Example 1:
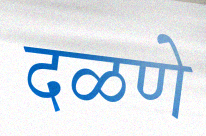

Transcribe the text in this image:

दळणे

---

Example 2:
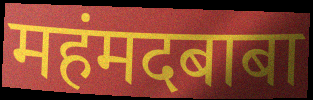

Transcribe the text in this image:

महंमदबाबा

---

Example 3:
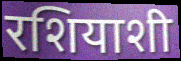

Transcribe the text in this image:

रशियाशी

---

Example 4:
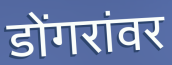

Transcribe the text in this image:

डोंगरांवर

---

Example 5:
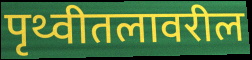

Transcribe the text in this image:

पृथ्वीतलावरील